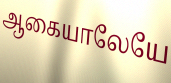
ஆகையாலேயே